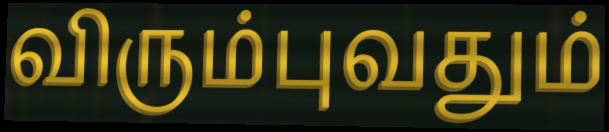
விரும்புவதும்